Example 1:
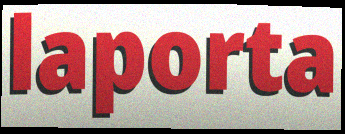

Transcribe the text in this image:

laporta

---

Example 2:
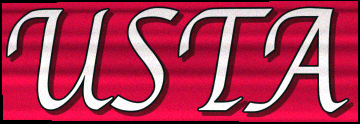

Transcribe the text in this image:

USTA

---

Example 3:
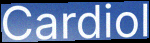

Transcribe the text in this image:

Cardiol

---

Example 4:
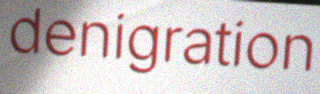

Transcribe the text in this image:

denigration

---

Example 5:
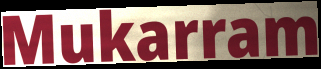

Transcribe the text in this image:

Mukarram